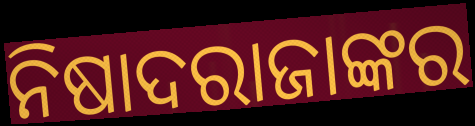
ନିଷାଦରାଜାଙ୍କର